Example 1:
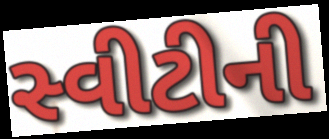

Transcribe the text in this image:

સ્વીટીની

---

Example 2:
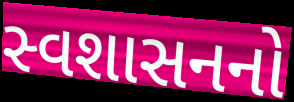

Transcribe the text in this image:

સ્વશાસનનો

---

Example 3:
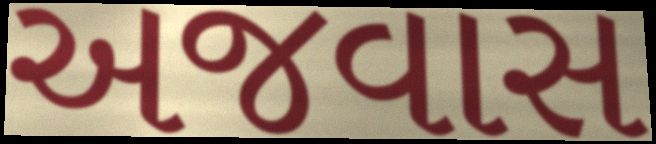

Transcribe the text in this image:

અજવાસ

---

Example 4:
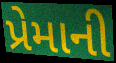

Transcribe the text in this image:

પ્રેમાની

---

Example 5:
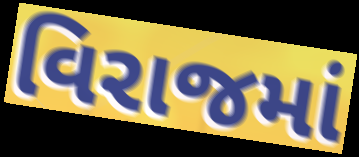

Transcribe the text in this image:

વિરાજમાં